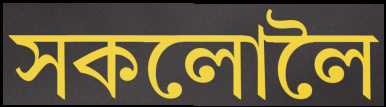
সকলোলৈ